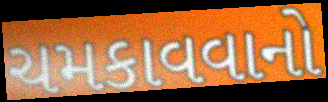
ચમકાવવાનો